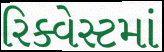
રિક્વેસ્ટમાં